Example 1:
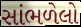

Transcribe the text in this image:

સાંભળેલો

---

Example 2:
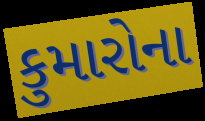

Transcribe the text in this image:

કુમારોના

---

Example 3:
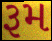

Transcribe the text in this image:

રૂમ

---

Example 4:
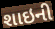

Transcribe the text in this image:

શાઇની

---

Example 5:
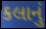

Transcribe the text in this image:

કલાનું